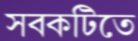
সবকটিতে